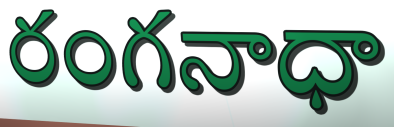
రంగనాధా